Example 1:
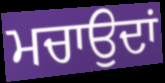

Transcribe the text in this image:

ਮਚਾਉਦਾਂ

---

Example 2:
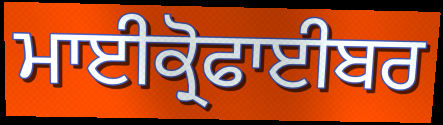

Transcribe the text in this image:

ਮਾਈਕ੍ਰੋਫਾਈਬਰ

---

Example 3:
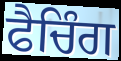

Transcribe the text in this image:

ਫੈਚਿੰਗ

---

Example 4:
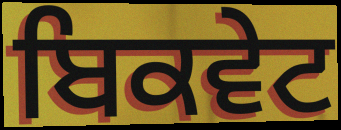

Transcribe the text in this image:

ਬਿਕਵੇਟ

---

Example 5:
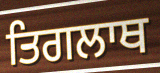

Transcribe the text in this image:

ਤਿਗਲਾਥ